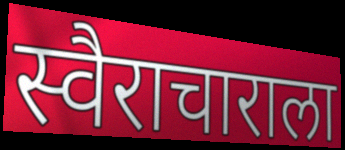
स्वैराचाराला